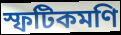
স্ফটিকমণি